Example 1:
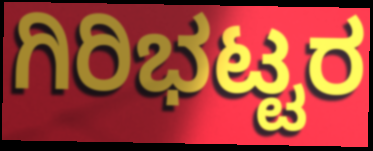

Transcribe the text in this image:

ಗಿರಿಭಟ್ಟರ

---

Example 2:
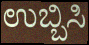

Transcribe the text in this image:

ಉಬ್ಬಿಸಿ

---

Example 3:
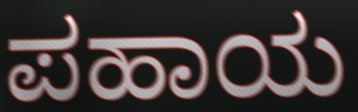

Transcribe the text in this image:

ಪಹಾಯ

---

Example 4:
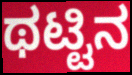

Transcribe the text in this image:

ಥಟ್ಟಿನ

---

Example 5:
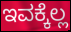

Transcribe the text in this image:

ಇವಕ್ಕೆಲ್ಲ